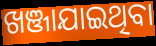
ଖଞ୍ଜାଯାଇଥିବା